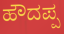
ಹೌದಪ್ಪ